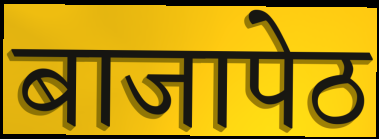
बाजापेठ